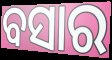
ବସାର